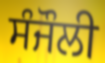
ਸੰਜੌਲੀ